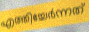
എത്തിച്ചേർന്നത്